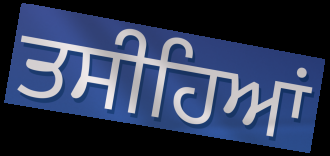
ਤਸੀਹਿਆਂ